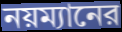
নয়ম্যানের